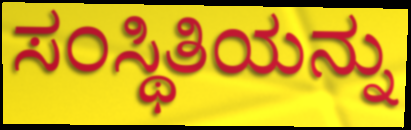
ಸಂಸ್ಥಿತಿಯನ್ನು